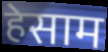
हेसाम